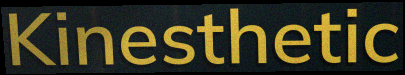
Kinesthetic